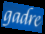
gadre